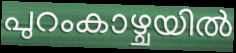
പുറംകാഴ്ചയിൽ